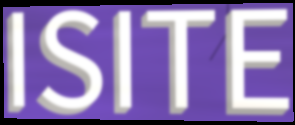
ISITE